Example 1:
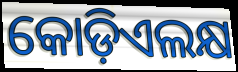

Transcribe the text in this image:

କୋଡ଼ିଏଲକ୍ଷ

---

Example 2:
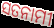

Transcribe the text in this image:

ସତନାମୀ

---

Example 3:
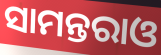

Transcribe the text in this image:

ସାମନ୍ତରାଓ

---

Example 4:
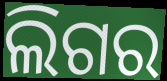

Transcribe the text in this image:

ଲିଗର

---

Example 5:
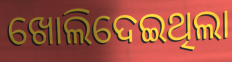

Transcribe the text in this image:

ଖୋଲିଦେଇଥିଲା